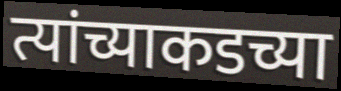
त्यांच्याकडच्या